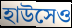
হাউসেও